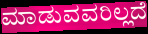
ಮಾಡುವವರಿಲ್ಲದೆ